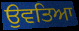
ਉਵਤਿਆ